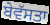
ਬੇਵੱਸਤਾ